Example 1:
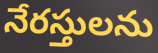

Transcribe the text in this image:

నేరస్తులను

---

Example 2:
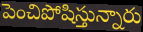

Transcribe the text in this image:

పెంచిపోషిస్తున్నారు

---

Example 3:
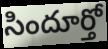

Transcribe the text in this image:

సిందూర్తో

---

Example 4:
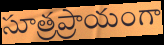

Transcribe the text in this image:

సూత్రప్రాయంగా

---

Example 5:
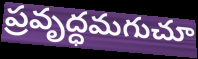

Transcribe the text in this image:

ప్రవృద్ధమగుచూ